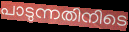
പാടുന്നതിനിടെ